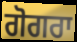
ਗੋਗਰਾ